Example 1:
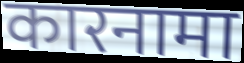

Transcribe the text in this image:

कारनामा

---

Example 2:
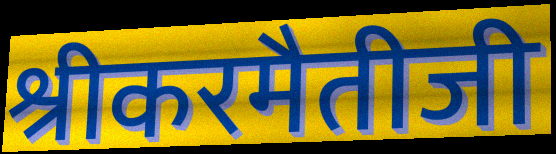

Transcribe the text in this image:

श्रीकरमैतीजी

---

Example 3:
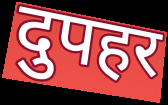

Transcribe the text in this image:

दुपहर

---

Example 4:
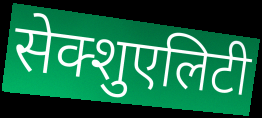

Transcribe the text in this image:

सेक्शुएलिटी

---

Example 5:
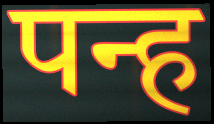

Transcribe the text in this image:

पन्ह